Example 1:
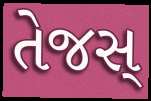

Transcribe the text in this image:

તેજસ્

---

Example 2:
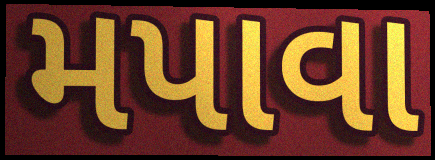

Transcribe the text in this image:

મપાવા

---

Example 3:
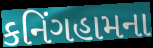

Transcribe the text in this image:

કનિંગહામના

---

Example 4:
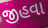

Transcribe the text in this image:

જીહવા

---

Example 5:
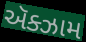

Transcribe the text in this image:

ઍક્ઝામ